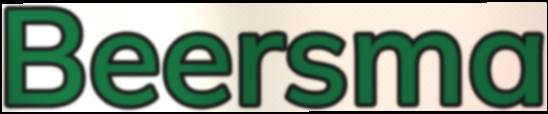
Beersma